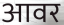
आवर